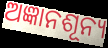
ଅଜ୍ଞାନଶୂନ୍ୟ